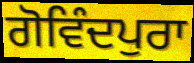
ਗੋਵਿੰਦਪੁਰਾ